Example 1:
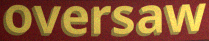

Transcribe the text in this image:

oversaw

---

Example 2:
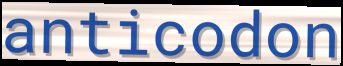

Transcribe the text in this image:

anticodon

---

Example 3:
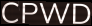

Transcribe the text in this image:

CPWD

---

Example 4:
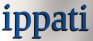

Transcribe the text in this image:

ippati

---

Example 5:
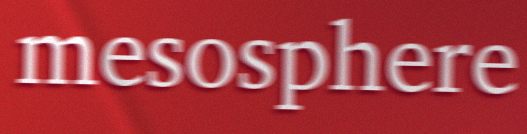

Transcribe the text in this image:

mesosphere